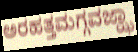
ಅರಹತ್ತಮಗ್ಗವಜ್ಝಾ